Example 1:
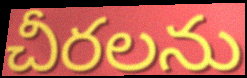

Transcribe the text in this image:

చీరలను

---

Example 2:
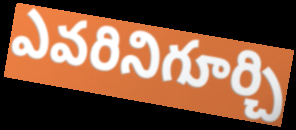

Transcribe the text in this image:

ఎవరినిగూర్చి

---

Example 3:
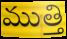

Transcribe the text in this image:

ముత్తి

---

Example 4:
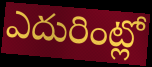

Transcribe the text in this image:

ఎదురింట్లో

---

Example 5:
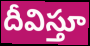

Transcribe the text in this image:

దీవిస్తూ